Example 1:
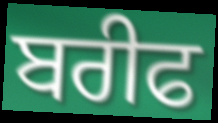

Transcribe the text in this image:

ਬਰੀਫ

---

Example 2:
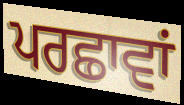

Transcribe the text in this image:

ਪਰਛਾਵਾਂ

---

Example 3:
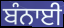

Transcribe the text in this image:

ਬੰਨਾਈ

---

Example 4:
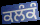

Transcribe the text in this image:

ਕਲੰਕੰ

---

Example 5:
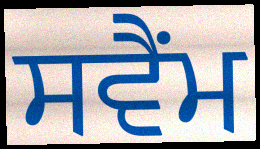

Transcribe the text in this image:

ਸਵੈਂਮ